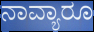
ನಾವ್ಯಾರೂ